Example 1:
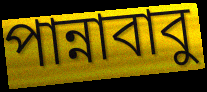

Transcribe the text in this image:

পান্নাবাবু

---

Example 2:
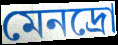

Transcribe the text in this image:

মেনদ্রো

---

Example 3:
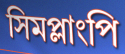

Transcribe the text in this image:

সিমপ্লাংপি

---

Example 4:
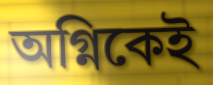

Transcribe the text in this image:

অগ্নিকেই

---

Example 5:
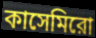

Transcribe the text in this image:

কাসেমিরো